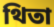
থিতা